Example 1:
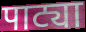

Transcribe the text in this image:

पाट्या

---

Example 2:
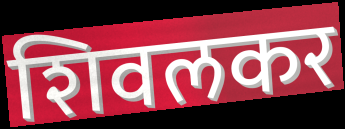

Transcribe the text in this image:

शिवलकर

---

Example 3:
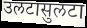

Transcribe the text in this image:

उलटासुलटा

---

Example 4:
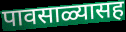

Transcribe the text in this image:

पावसाळ्यासह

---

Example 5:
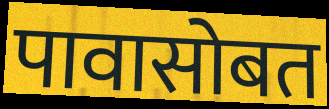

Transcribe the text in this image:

पावासोबत